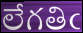
లేగతిఁ